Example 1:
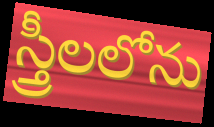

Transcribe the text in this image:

స్త్రీలలోను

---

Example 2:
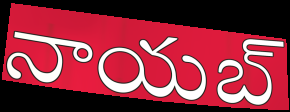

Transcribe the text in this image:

నాయబ్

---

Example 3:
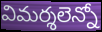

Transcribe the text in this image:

విమర్శలెన్నో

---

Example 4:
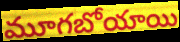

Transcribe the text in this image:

మూగబోయాయి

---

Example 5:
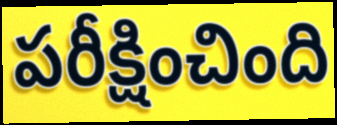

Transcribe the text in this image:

పరీక్షించింది